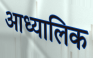
आध्यालिक